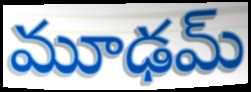
మూఢమ్